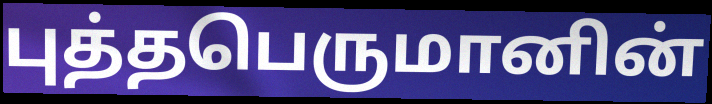
புத்தபெருமானின்